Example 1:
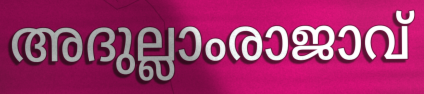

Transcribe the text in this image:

അദുല്ലാംരാജാവ്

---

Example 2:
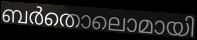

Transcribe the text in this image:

ബർതൊലൊമായി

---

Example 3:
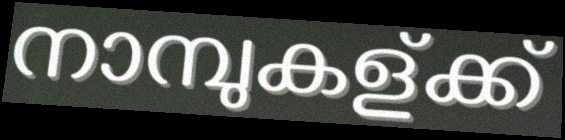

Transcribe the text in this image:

നാമ്പുകള്ക്ക്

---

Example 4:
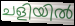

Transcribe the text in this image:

ചളിയിൽ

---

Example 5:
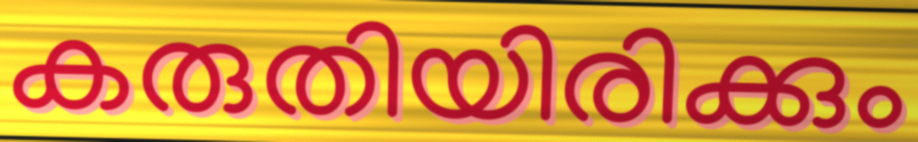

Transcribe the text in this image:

കരുതിയിരിക്കും